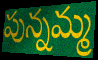
పున్నమ్మ